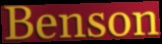
Benson